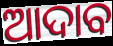
ଆଦାବ